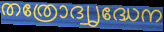
തത്രോദ്വൃദ്ധേന